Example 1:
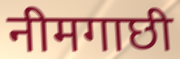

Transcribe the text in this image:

नीमगाछी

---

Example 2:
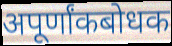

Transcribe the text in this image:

अपूर्णांकबोधक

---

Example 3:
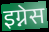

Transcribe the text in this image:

इग्नेस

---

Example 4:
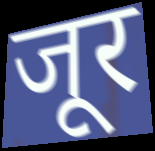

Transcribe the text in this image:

जूर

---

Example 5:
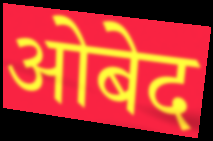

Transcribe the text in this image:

ओबेद